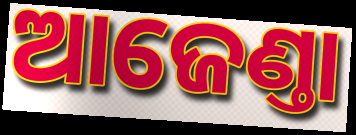
ଆଜେଣ୍ତା